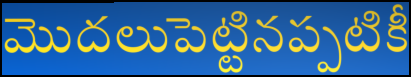
మొదలుపెట్టినప్పటికీ